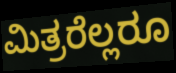
ಮಿತ್ರರೆಲ್ಲರೂ